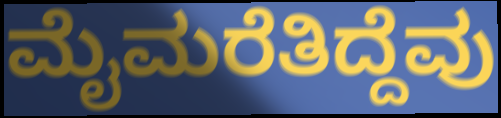
ಮೈಮರೆತಿದ್ದೆವು